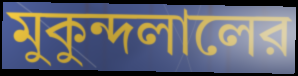
মুকুন্দলালের